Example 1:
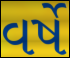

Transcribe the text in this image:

વર્ષે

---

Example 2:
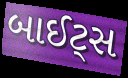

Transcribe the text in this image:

બાઈટ્સ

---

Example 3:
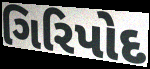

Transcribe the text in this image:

ગિરિપોદ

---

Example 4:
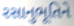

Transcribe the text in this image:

રસાનુભૂતિને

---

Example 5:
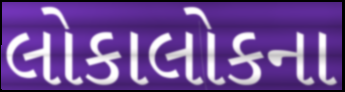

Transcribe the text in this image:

લોકાલોકના